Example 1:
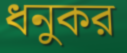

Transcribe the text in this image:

ধনুকর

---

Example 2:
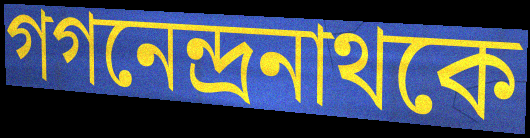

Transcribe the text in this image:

গগনেন্দ্রনাথকে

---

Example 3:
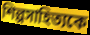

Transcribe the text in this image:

শিল্পসাহিত্যকে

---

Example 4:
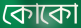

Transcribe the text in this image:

কোকো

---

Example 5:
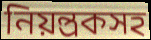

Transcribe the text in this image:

নিয়ন্ত্রকসহ